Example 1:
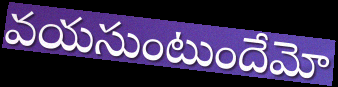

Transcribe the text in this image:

వయసుంటుందేమో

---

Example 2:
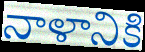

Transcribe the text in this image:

నాళానికి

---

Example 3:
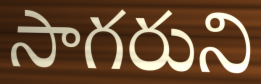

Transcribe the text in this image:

సాగరుని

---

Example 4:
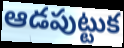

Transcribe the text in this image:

ఆడపుట్టుక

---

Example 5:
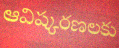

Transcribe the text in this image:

ఆవిష్కరణలకు